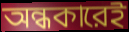
অন্ধকারেই